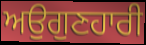
ਅਉਗੁਣਹਾਰੀ